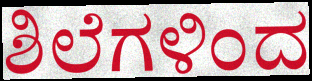
ಶಿಲೆಗಳಿಂದ